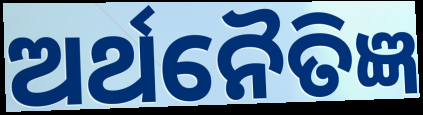
ଅର୍ଥନୈତିଜ୍ଞ